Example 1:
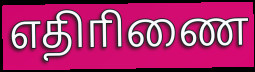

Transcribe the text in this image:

எதிரிணை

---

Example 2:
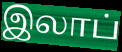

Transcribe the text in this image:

இலாப்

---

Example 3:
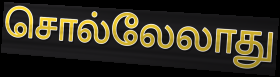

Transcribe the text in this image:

சொல்லேலாது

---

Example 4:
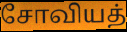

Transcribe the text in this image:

சோவியத்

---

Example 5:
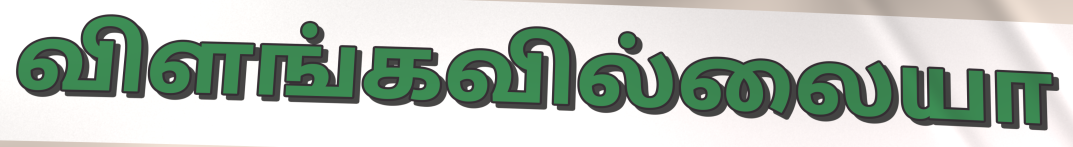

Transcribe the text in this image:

விளங்கவில்லையா